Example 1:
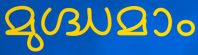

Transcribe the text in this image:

മുഗ്ദ്ധമാം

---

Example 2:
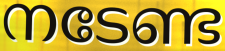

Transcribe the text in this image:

നടേണ്ട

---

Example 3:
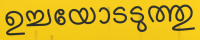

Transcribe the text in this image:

ഉച്ചയോടടുത്തു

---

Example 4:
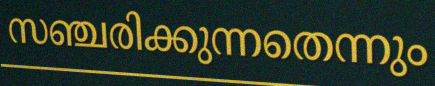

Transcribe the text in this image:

സഞ്ചരിക്കുന്നതെന്നും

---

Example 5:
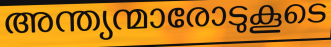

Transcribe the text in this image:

അന്ത്യന്മാരോടുകൂടെ